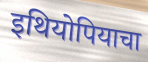
इथियोपियाचा